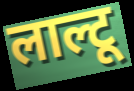
लाल्टू